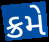
ક્રમે